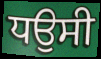
ਧਉਸੀ